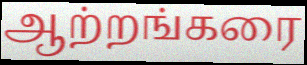
ஆற்றங்கரை